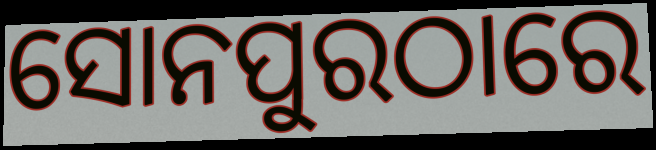
ସୋନପୁରଠାରେ